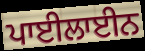
ਪਾਈਲਾਈਨ